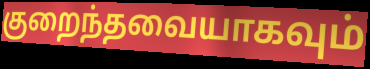
குறைந்தவையாகவும்